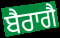
ਬੈਰਾਗੈ